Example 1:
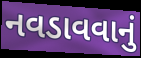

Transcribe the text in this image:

નવડાવવાનું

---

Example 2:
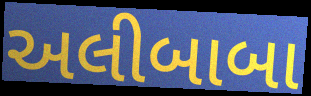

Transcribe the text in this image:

અલીબાબા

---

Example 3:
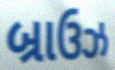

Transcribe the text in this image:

બ્રાઉઝ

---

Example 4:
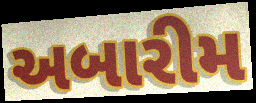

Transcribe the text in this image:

અબારીમ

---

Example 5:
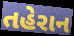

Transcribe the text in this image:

તહેરાન